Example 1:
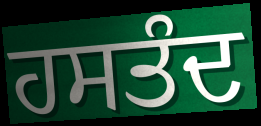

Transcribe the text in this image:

ਹਸਤੰਦ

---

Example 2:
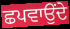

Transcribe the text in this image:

ਛਪਵਾਉਂਦੇ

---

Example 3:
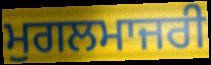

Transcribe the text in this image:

ਮੁਗਲਮਾਜਰੀ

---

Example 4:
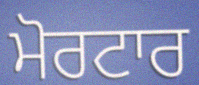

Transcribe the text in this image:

ਮੋਰਟਾਰ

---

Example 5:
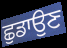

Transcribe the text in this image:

ਛੁਡਾਉਣ